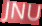
JNU